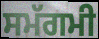
ਸਮੱਗਮੀ